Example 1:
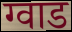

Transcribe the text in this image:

ग्वाड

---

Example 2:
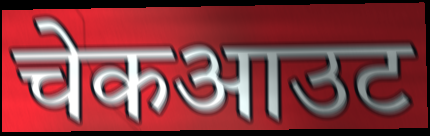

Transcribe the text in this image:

चेकआउट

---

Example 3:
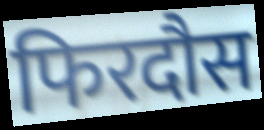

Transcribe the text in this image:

फिरदौस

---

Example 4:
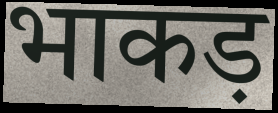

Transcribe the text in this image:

भाकड़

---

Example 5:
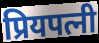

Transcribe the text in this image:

प्रियपत्नी